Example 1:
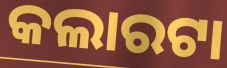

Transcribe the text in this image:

କଲାରଟା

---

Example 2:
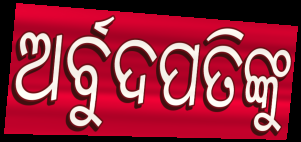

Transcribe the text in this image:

ଅର୍ବୁଦପତିଙ୍କୁ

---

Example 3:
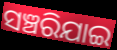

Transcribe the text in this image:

ସଞ୍ଚରିଯାଇ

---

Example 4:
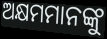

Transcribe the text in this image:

ଅକ୍ଷମମାନଙ୍କୁ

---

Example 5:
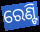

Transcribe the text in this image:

ରେଣ୍ଟି